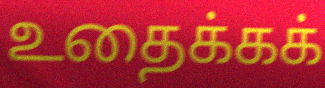
உதைக்கக்